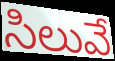
సిలువే